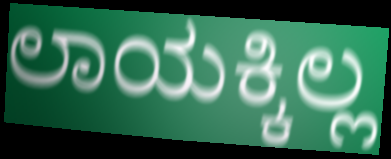
ಲಾಯಕ್ಕಿಲ್ಲ